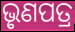
ଭୃଣପତ୍ର